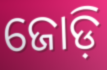
ଜୋଡ଼ି